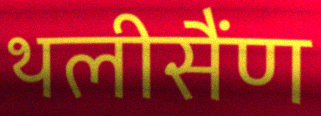
थलीसैंण